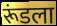
रूंडला